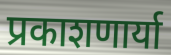
प्रकाशणार्या